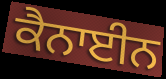
ਕੈਨਾਈਨ